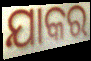
ଯାକର